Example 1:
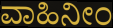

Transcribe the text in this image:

ವಾಹಿನೀಂ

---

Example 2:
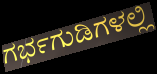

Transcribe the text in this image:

ಗರ್ಭಗುಡಿಗಳಲ್ಲಿ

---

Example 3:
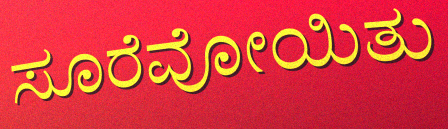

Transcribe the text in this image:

ಸೂರೆವೋಯಿತು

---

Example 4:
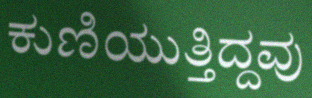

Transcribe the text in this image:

ಕುಣಿಯುತ್ತಿದ್ದವು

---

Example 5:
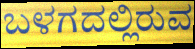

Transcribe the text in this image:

ಬಳಗದಲ್ಲಿರುವ